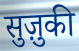
सुज़ुकी